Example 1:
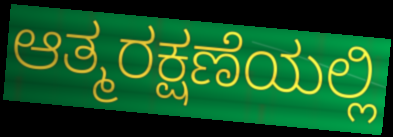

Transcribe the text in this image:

ಆತ್ಮರಕ್ಷಣೆಯಲ್ಲಿ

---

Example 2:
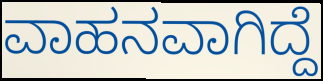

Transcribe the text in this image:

ವಾಹನವಾಗಿದ್ದೆ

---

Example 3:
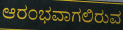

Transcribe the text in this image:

ಆರಂಭವಾಗಲಿರುವ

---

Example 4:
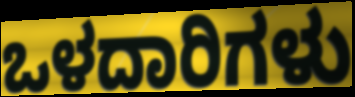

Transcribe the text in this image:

ಒಳದಾರಿಗಳು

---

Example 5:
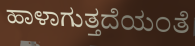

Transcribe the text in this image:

ಹಾಳಾಗುತ್ತದೆಯಂತೆ